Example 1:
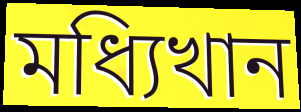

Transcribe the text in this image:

মধ্যিখান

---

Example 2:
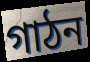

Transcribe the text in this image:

গাঠন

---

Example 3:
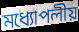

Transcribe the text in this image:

মধ্যোপলীয়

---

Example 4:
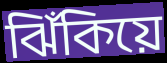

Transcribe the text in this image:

ঝিঁকিয়ে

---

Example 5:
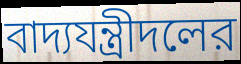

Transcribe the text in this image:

বাদ্যযন্ত্রীদলের